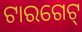
ଟାରଗେଟ୍